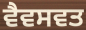
ਵੈਵਸਵਤ